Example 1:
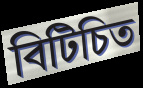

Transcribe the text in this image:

বিটিচিত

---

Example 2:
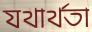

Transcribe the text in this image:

যথাৰ্থতা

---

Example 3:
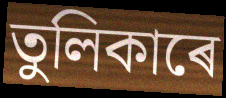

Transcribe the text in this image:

তুলিকাৰে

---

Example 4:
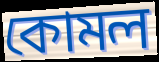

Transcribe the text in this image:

কোমল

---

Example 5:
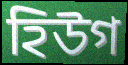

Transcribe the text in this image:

হিউগ